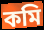
কমি